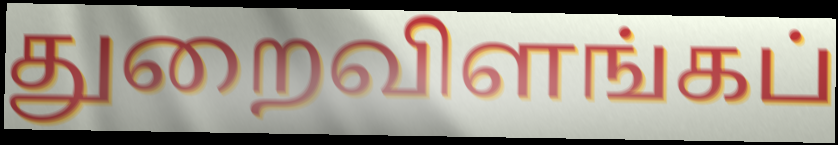
துறைவிளங்கப்